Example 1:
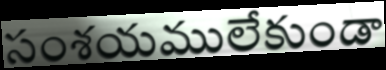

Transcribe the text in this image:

సంశయములేకుండా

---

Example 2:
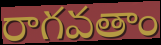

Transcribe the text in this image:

రాగవతాం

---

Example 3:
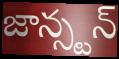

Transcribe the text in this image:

జాన్స్టన్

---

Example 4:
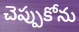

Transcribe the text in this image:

చెప్పుకోను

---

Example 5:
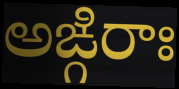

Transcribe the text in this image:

అఙ్గిరాః